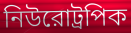
নিউরোট্রপিক